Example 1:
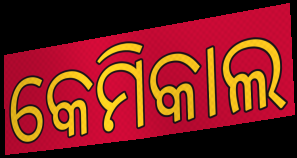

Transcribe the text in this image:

କେମିକାଲ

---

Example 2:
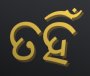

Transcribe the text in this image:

ତହିଁ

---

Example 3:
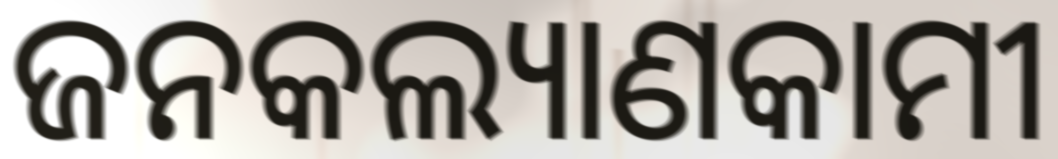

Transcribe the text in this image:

ଜନକଲ୍ୟାଣକାମୀ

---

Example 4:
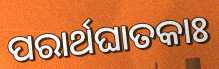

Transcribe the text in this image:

ପରାର୍ଥଘାତକାଃ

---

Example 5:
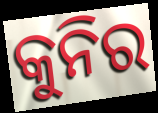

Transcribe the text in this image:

କୁନିର